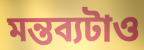
মন্তব্যটাও